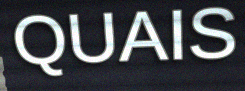
QUAIS